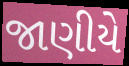
જાણીયે